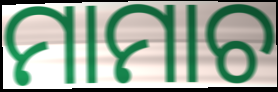
ମାମାଚ